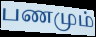
பணமும்